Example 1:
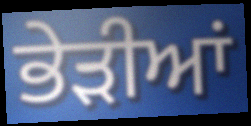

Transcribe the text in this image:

ਭੇੜੀਆਂ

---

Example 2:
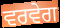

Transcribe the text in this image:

ਵਰਵੇਗ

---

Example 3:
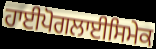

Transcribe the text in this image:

ਹਾਈਪੋਗਲਾਈਸਿਮੇਕ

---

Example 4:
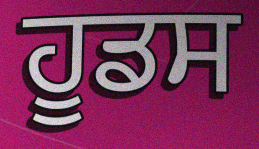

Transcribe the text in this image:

ਹੂਡਸ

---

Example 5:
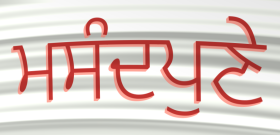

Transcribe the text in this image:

ਮਸੰਦਪੁਣੇ